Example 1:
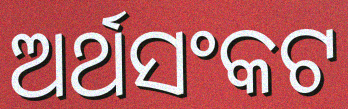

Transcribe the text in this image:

ଅର୍ଥସଂକଟ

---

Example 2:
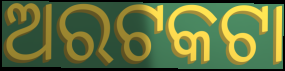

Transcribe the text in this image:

ଅରଟକଟା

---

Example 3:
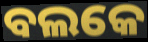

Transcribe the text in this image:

ବଲକେ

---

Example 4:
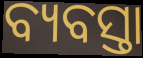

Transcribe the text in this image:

ବ୍ୟବସ୍ତା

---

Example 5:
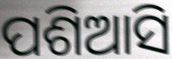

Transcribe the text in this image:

ପଶିଆସି